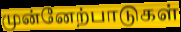
முன்னேற்பாடுகள்